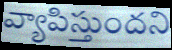
వ్యాపిస్తుందని